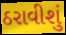
ઠરાવીશું